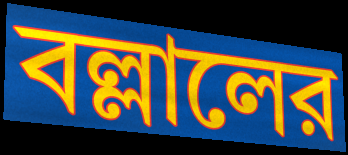
বল্লালের